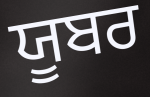
ਯੂਬਰ